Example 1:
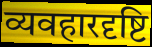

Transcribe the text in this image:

व्यवहारदृष्टि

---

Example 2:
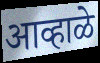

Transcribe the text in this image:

आव्हाळे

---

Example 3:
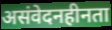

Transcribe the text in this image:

असंवेदनहीनता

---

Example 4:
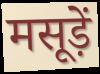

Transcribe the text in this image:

मसूड़ें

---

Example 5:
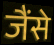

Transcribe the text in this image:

जैंसे